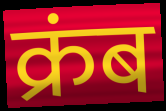
क्रंब